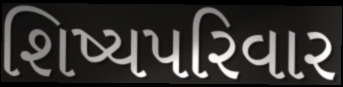
શિષ્યપરિવાર